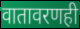
वातावरणही